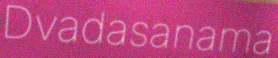
Dvadasanama